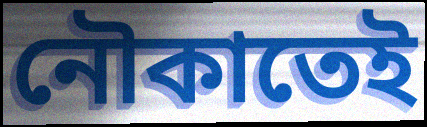
নৌকাতেই